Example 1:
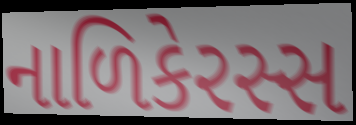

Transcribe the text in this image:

નાળિકેરસ્સ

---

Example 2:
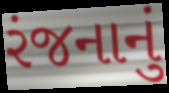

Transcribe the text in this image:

રંજનાનું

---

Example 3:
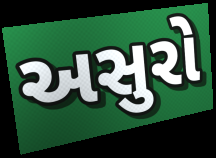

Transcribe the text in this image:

અસુરો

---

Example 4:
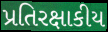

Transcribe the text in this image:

પ્રતિરક્ષાકીય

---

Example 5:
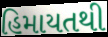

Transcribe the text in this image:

હિમાયતથી